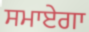
ਸਮਾਏਗਾ